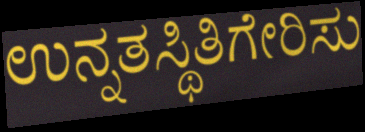
ಉನ್ನತಸ್ಥಿತಿಗೇರಿಸು